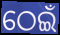
ଠେଇଁ